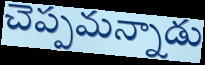
చెప్పమన్నాడు